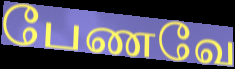
பேணவே